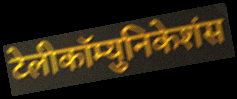
टेलीकॉम्युनिकेशंस